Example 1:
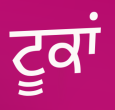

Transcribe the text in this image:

ਟੂਕਾਂ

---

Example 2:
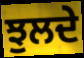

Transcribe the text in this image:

ਝੁਲਦੇ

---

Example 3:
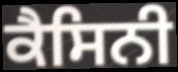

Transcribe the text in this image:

ਕੈਸਿਨੀ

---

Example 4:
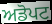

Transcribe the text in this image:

ਅਡੋਪਟ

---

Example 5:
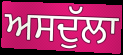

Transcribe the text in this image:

ਅਸਦੁੱਲਾ